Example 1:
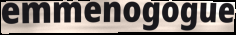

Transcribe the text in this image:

emmenogogue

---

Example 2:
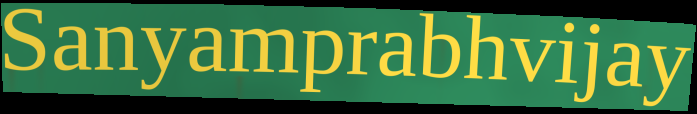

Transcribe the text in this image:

Sanyamprabhvijay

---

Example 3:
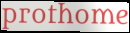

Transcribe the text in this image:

prothome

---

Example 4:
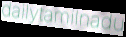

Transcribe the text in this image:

dailytamilnadu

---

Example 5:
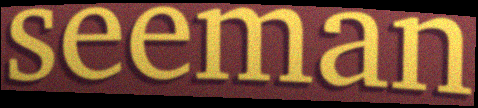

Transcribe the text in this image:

seeman